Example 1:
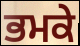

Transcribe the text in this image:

ਭਮਕੇ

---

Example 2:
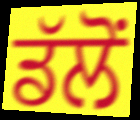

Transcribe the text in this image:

ਡੱਲੋਂ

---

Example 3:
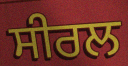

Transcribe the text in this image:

ਸੀਰਲ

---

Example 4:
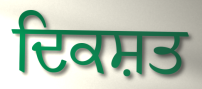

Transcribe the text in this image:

ਦਿਕਸ਼ਤ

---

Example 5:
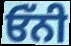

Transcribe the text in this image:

ਓੱਨੀ